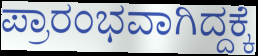
ಪ್ರಾರಂಭವಾಗಿದ್ದಕ್ಕೆ